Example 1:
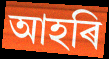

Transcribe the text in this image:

আহৰি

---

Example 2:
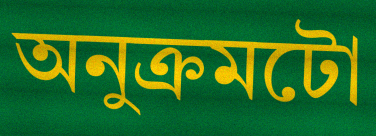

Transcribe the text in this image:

অনুক্ৰমটো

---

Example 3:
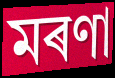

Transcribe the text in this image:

মৰণা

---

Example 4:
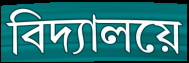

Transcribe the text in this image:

বিদ্যালয়ে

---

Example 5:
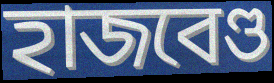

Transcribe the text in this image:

হাজবেণ্ড